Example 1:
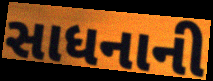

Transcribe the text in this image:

સાધનાની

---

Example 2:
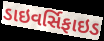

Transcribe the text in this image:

ડાઇવર્સિફાઇડ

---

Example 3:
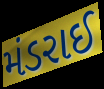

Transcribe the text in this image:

મંડરાઈ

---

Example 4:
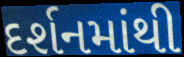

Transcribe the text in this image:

દર્શનમાંથી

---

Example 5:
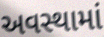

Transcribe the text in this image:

અવસ્થામાં